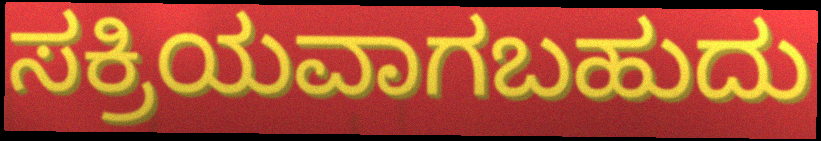
ಸಕ್ರಿಯವಾಗಬಹುದು